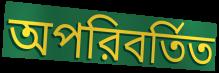
অপরিবর্তিত